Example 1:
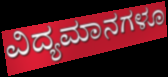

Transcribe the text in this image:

ವಿದ್ಯಮಾನಗಳೂ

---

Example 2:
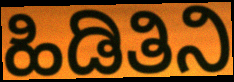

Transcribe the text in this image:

ಹಿಡಿತಿನಿ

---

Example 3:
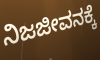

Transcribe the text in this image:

ನಿಜಜೀವನಕ್ಕೆ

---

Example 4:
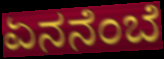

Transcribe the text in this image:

ಏನನೆಂಬೆ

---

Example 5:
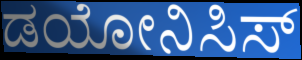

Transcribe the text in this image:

ಡಯೋನಿಸಿಸ್